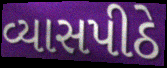
વ્યાસપીઠે